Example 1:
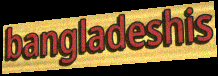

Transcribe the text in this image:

bangladeshis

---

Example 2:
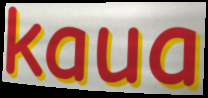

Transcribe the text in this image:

kaua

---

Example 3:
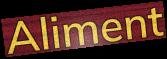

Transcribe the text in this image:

Aliment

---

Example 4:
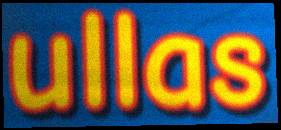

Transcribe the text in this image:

ullas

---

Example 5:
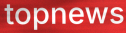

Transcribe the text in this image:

topnews